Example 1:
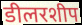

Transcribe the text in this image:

डीलरशीप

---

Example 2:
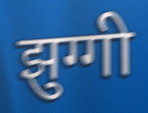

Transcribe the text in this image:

झुग्गी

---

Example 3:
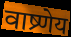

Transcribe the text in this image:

वाष्र्णेय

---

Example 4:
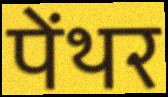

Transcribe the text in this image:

पेंथर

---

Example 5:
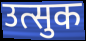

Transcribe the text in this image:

उत्सुक